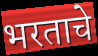
भरताचे